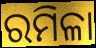
ରମିଳା